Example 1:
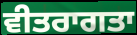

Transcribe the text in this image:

ਵੀਤਰਾਗਤਾ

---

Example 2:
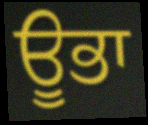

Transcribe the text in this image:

ਊਭਾ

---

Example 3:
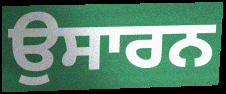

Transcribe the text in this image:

ਉਸਾਰਨ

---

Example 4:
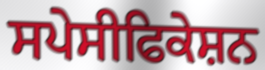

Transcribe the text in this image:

ਸਪੇਸੀਫਿਕੇਸ਼ਨ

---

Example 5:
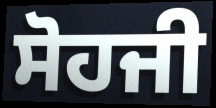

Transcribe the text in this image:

ਸੋਹਜੀ